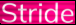
Stride